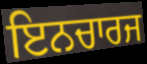
ਇਨਚਾਰਜ